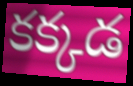
కక్కడ